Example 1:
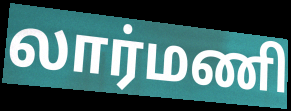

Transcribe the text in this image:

லார்மணி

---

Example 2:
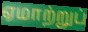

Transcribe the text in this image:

ஏமாற்றுப்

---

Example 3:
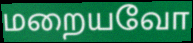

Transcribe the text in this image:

மறையவோ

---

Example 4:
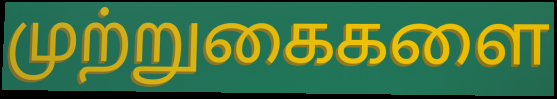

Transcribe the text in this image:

முற்றுகைகளை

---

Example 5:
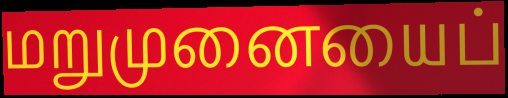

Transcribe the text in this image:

மறுமுனையைப்